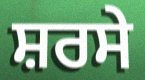
ਸ਼ਰਸੇ